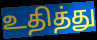
உதித்து